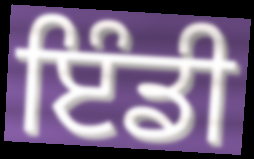
ਇੰਡੀ